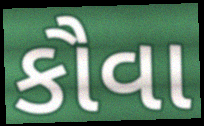
કૌવા